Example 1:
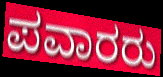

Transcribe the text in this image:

ಪವಾರರು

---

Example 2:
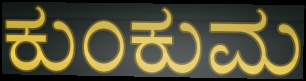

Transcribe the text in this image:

ಕುಂಕುಮ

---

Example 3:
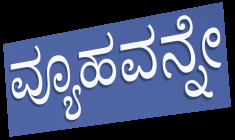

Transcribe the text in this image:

ವ್ಯೂಹವನ್ನೇ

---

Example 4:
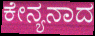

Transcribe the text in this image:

ಕೇನ್ಯನಾದ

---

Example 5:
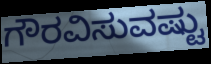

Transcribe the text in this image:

ಗೌರವಿಸುವಷ್ಟು